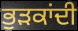
ਭੁੜਕਾਂਦੀ